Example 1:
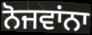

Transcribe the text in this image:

ਨੋਜਵਾਂਨਾ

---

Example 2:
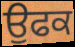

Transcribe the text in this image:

ਉਫਕ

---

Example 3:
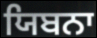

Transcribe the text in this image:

ਯਿਬਨਾ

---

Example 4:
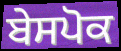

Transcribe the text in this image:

ਬੇਸਪੋਕ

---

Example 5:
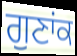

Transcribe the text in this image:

ਗੁਣਾਂਕ